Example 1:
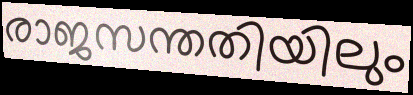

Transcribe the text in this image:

രാജസന്തതിയിലും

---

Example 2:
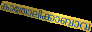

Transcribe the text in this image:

കാതോലിക്കാബാവ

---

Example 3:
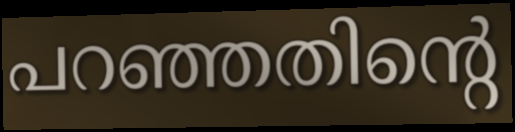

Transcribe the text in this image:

പറഞ്ഞതിന്റെ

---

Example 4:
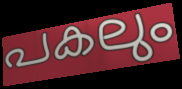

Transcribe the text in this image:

പകലും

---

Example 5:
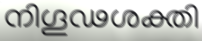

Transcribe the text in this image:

നിഗൂഢശക്തി